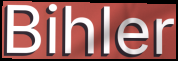
Bihler